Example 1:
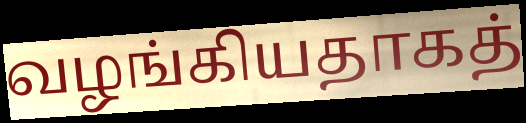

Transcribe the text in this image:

வழங்கியதாகத்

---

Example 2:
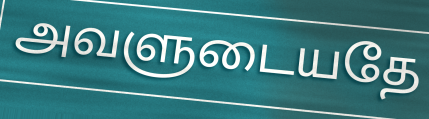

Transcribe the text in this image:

அவளுடையதே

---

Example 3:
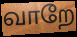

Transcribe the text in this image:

வாறே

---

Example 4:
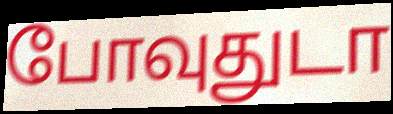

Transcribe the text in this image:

போவுதுடா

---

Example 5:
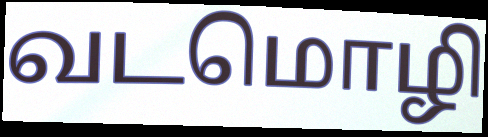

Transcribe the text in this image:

வடமொழி